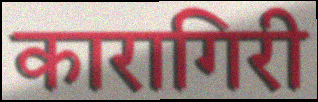
कारागिरी